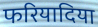
फरियादिया